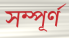
সম্পূৰ্ণ